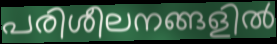
പരിശീലനങ്ങളിൽ